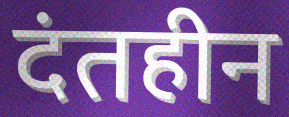
दंतहीन